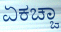
ಏಕಚ್ಚಾ